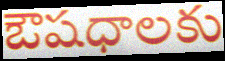
ఔషధాలకు